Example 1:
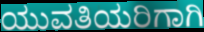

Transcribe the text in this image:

ಯುವತಿಯರಿಗಾಗಿ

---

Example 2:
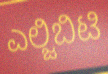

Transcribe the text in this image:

ಎಲ್ಜಿಬಿಟಿ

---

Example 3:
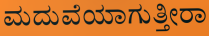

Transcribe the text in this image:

ಮದುವೆಯಾಗುತ್ತೀರಾ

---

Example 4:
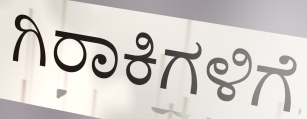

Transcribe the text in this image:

ಗಿರಾಕಿಗಳಿಗೆ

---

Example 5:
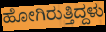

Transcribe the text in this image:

ಹೋಗಿರುತ್ತಿದ್ದಳು